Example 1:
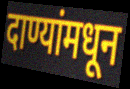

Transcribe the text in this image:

दाण्यांमधून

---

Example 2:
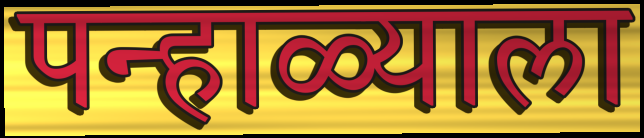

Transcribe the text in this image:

पन्हाळ्याला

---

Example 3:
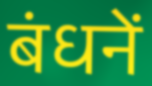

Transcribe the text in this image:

बंधनें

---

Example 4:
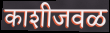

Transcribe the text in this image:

काशीजवळ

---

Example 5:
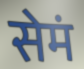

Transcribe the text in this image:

सेमं